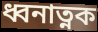
ধ্বনাত্নক